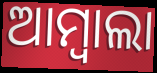
ଆମ୍ବାଲା